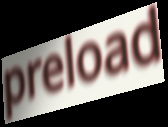
preload